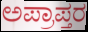
ಅಪ್ರಾಪ್ತರ